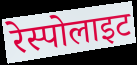
रेस्पोलाइट